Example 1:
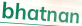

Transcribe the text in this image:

bhatnan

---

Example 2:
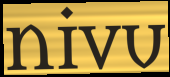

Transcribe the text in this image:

nivu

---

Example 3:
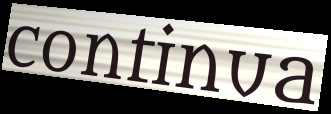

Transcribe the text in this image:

continua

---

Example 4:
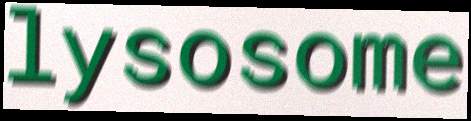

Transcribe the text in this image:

lysosome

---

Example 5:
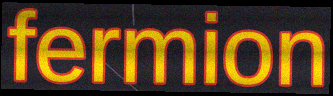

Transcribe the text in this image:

fermion